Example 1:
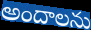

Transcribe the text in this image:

అందాలను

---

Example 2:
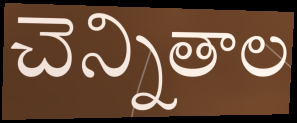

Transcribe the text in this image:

చెన్నితాల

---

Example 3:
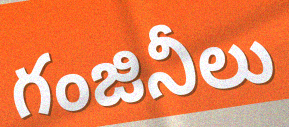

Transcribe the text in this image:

గంజినీలు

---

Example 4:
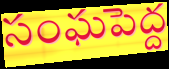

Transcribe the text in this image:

సంఘపెద్ద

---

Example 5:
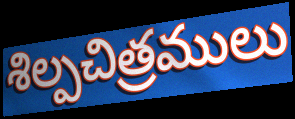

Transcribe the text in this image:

శిల్పచిత్రములు